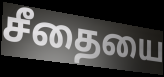
சீதையை